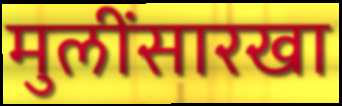
मुलींसारखा